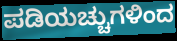
ಪಡಿಯಚ್ಚುಗಳಿಂದ